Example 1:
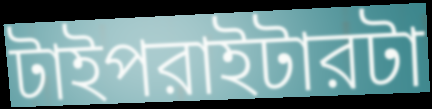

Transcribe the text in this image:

টাইপরাইটারটা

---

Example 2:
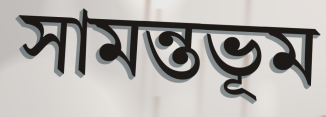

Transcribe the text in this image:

সামন্তভূম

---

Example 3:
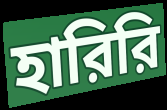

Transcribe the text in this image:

হারিরি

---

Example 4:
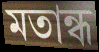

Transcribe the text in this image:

মতান্ধ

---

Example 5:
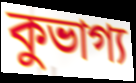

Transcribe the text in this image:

কুভাগ্য